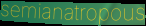
semianatropous